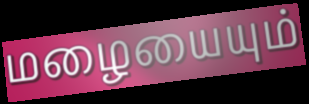
மழையையும்